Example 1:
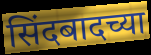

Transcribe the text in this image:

सिंदबादच्या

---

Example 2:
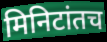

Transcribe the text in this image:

मिनिटांतच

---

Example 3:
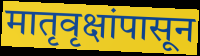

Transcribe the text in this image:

मातृवृक्षांपासून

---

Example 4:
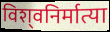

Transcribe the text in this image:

विश्वनिर्मात्या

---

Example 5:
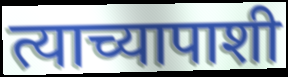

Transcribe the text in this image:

त्याच्यापाशी